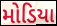
મોડિયા